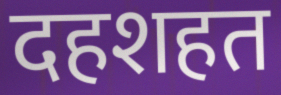
दहशहत